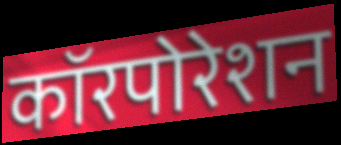
कॉरपोरेशन